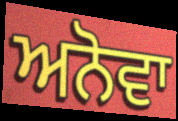
ਅਨੋਵਾ